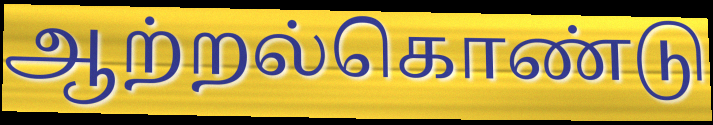
ஆற்றல்கொண்டு